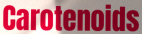
Carotenoids